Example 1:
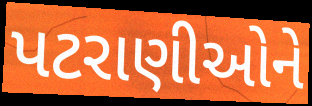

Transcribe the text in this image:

પટરાણીઓને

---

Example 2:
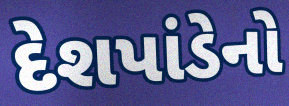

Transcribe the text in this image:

દેશપાંડેનો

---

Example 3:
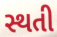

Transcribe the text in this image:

સ્થતી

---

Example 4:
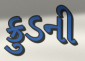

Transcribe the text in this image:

ક્રુડની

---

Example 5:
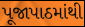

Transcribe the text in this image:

પૂજાપાઠમાંથી